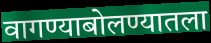
वागण्याबोलण्यातला